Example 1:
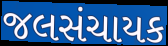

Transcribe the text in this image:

જલસંચાયક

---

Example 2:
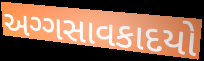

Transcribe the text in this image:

અગ્ગસાવકાદયો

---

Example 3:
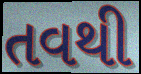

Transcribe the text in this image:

તવથી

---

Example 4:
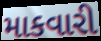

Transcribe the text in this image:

માકવારી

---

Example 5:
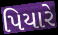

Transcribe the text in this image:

પિયારે